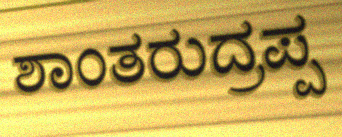
ಶಾಂತರುದ್ರಪ್ಪ